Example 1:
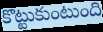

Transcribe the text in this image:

కొట్టుకుంటుంది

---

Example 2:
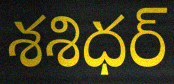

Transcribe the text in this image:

శశిధర్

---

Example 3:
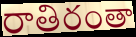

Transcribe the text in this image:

రాతిరంతా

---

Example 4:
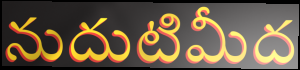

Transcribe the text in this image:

నుదుటిమీద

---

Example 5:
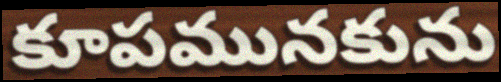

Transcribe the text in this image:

కూపమునకును